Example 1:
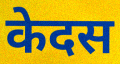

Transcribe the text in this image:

केदस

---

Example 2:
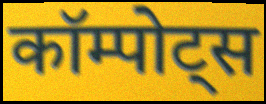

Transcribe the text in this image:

कॉम्पोट्स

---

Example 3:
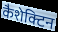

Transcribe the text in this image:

कैशेक्टिन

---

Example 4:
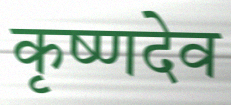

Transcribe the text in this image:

कृष्‍णदेव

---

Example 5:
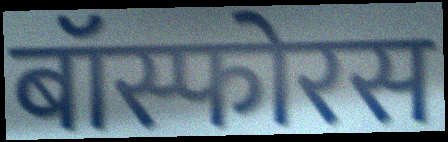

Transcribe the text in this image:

बॉस्फोरस